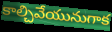
కాల్చివేయునుగాక